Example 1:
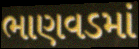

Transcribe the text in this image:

ભાણવડમાં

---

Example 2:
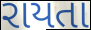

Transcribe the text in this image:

રાયતા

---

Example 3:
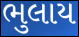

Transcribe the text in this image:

ભુલાય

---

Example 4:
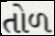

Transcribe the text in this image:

તોળ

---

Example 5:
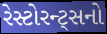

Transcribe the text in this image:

રેસ્ટોરન્ટ્સનો